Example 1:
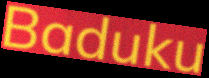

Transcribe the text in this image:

Baduku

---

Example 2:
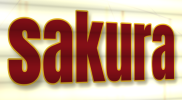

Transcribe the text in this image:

sakura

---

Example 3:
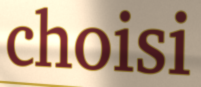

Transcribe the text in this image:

choisi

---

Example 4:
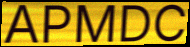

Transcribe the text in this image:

APMDC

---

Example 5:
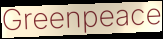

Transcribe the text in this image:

Greenpeace